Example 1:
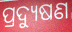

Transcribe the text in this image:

ପ୍ରଦ୍ଯୁଷଣ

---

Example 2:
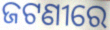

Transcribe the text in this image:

ଜଟଣୀରେ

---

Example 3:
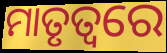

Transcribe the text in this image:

ମାତୃତ୍ୱରେ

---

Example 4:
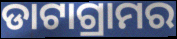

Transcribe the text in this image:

ଡାଟାଗ୍ରାମର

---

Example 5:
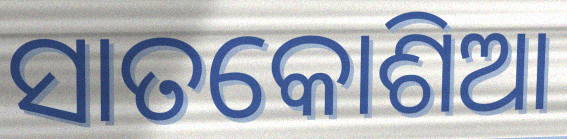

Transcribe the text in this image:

ସାତକୋଶିଆ